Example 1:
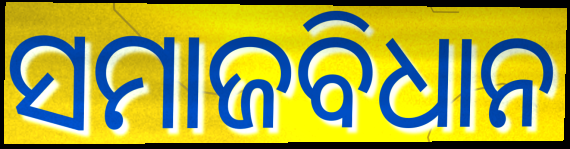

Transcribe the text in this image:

ସମାଜବିଧାନ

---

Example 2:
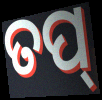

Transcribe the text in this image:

ତପ୍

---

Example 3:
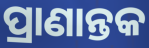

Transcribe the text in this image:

ପ୍ରାଣାନ୍ତକ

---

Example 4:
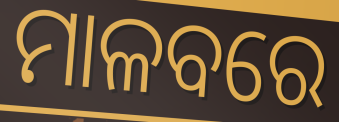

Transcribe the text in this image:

ମାଳବରେ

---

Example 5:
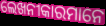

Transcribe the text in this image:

ଲେଖନୀକାରମାନେ